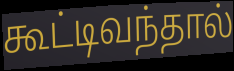
கூட்டிவந்தால்